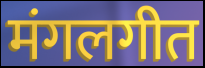
मंगलगीत